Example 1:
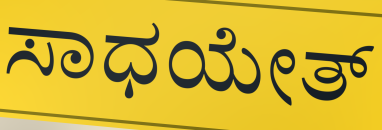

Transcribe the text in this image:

ಸಾಧಯೇತ್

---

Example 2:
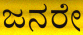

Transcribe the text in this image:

ಜನರೇ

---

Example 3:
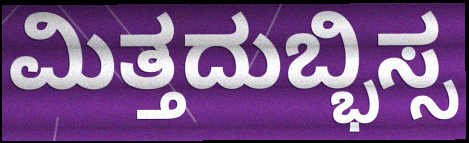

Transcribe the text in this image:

ಮಿತ್ತದುಬ್ಭಿಸ್ಸ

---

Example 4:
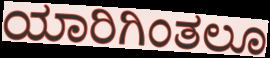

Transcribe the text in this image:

ಯಾರಿಗಿಂತಲೂ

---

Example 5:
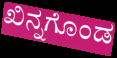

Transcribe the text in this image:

ಖಿನ್ನಗೊಂಡ